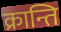
क्रान्ति